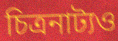
চিত্রনাট্যও